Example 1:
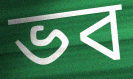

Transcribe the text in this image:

ভব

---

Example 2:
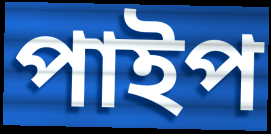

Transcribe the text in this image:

পাইপ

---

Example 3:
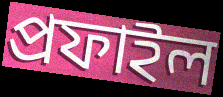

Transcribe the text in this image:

প্ৰফাইল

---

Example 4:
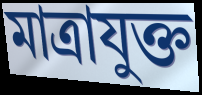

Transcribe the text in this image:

মাত্ৰাযুক্ত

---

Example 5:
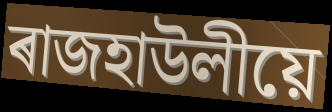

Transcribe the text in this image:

ৰাজহাউলীয়ে